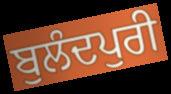
ਬੁਲੰਦਪੁਰੀ